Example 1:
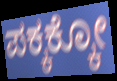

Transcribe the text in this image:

ಪಕ್ಕಕ್ಕೋ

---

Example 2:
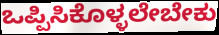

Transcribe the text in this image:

ಒಪ್ಪಿಸಿಕೊಳ್ಳಲೇಬೇಕು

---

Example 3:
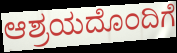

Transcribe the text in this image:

ಆಶ್ರಯದೊಂದಿಗೆ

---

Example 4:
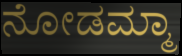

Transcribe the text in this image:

ನೋಡಮ್ಮಾ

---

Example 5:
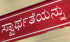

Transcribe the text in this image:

ಸ್ವಾರ್ಥತೆಯನ್ನು